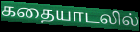
கதையாடலில்